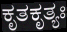
ಕೃತಕೃತ್ಯಃ